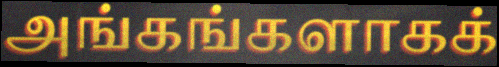
அங்கங்களாகக்